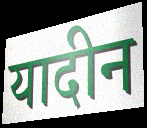
यादीन